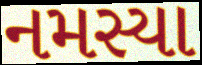
નમસ્યા